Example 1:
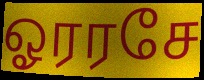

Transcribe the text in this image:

ஓரரசே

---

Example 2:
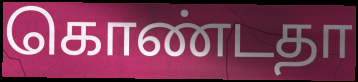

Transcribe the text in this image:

கொண்டதா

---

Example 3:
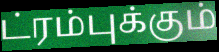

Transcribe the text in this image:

ட்ரம்புக்கும்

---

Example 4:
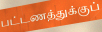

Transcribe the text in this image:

பட்டணத்துக்குப்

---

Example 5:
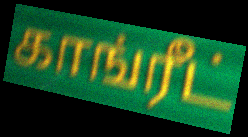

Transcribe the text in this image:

காங்ரீட்